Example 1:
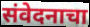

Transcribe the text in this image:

संवेदनाचा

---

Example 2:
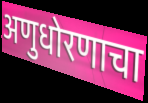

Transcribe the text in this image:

अणुधोरणाचा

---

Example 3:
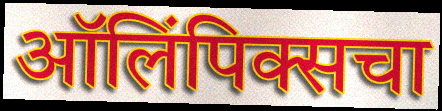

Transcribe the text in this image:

ऑलिंपिक्सचा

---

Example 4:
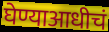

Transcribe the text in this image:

घेण्याआधीचं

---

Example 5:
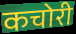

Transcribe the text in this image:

कचोरी